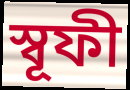
স্বূফী